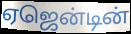
ஏஜென்டின்